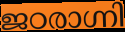
ജഠരാഗ്നി